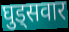
घुड्सवार